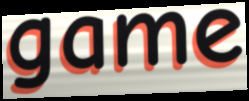
game